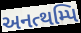
અનત્થમ્પિ